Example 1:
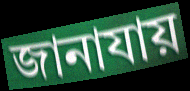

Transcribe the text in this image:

জানাযায়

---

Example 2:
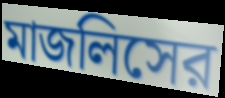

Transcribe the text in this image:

মাজলিসের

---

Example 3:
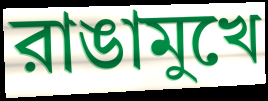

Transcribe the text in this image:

রাঙামুখে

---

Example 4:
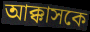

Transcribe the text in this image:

আক্কাসকে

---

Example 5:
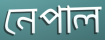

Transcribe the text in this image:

নেপাল